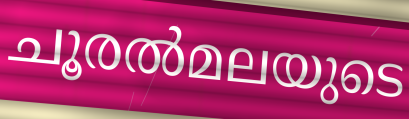
ചൂരൽമലയുടെ